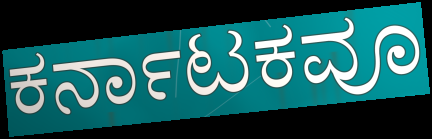
ಕರ್ನಾಟಕವೂ